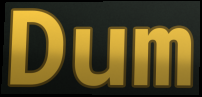
Dum